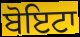
ਬੋਇਟਾ